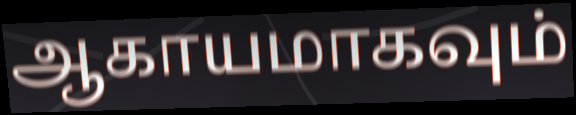
ஆகாயமாகவும்